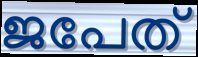
ജപേത്